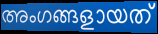
അംഗങ്ങളായത്